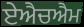
ਏਐਚਐਮ